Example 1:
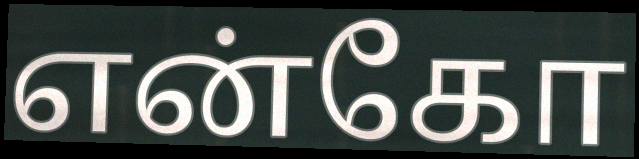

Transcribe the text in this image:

என்கோ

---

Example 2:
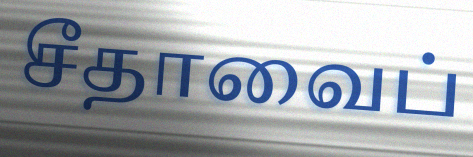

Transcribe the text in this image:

சீதாவைப்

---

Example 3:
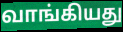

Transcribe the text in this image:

வாங்கியது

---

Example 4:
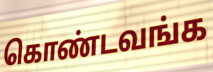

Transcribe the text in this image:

கொண்டவங்க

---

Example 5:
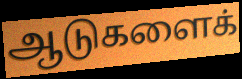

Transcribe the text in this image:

ஆடுகளைக்